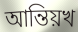
আন্তিয়খ